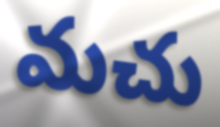
మచు